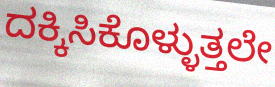
ದಕ್ಕಿಸಿಕೊಳ್ಳುತ್ತಲೇ